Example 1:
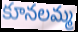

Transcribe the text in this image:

కూనలమ్మ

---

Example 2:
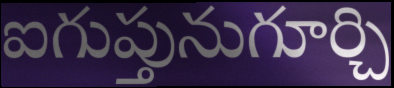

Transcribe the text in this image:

ఐగుప్తునుగూర్చి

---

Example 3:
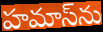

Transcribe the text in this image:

హమాస్‌ను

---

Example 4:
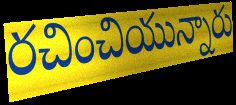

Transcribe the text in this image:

రచించియున్నారు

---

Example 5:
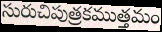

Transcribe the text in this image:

సురుచిపుత్రకముత్తమం